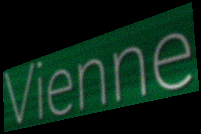
Vienne